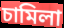
চামিলা